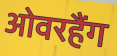
ओवरहैंग